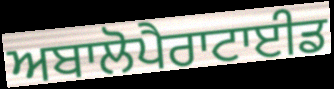
ਅਬਾਲੋਪੈਰਾਟਾਈਡ